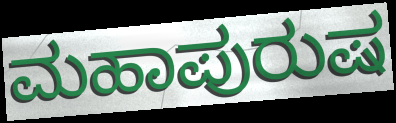
ಮಹಾಪುರುಷ